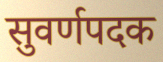
सुवर्णपदक